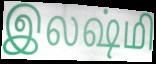
இலஷ்மி